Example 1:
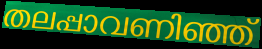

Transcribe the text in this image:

തലപ്പാവണിഞ്ഞ്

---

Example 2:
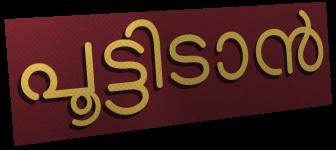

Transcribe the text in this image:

പൂട്ടിടാൻ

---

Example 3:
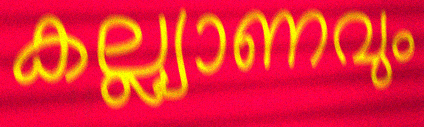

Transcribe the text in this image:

കല്ല്യാണവും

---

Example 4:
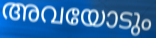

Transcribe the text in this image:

അവയോടും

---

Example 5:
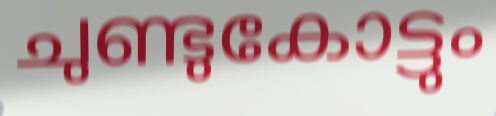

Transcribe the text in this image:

ചുണ്ടുകോട്ടും